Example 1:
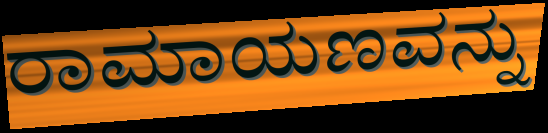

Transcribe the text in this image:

ರಾಮಾಯಣವನ್ನು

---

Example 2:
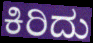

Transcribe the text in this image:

ಕಿರಿದು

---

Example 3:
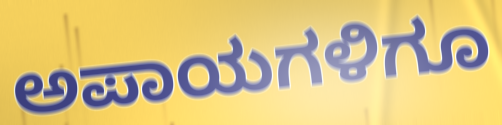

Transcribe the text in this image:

ಅಪಾಯಗಳಿಗೂ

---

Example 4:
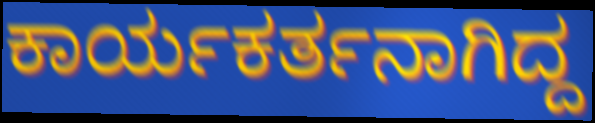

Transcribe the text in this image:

ಕಾರ್ಯಕರ್ತನಾಗಿದ್ದ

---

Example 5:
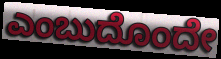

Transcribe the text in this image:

ಎಂಬುದೊಂದೇ